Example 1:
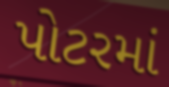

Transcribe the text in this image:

પોટરમાં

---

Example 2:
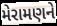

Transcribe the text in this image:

મેરામણને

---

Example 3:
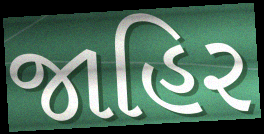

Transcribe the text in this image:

જાહિર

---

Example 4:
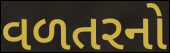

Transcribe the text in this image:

વળતરનો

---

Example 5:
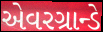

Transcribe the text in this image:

એવરગ્રાન્ડે